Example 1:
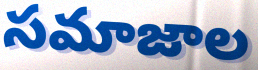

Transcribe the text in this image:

సమాజాల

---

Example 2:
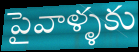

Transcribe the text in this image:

పైవాళ్ళకు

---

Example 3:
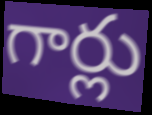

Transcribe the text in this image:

గార్లు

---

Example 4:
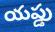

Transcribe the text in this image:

యప్డు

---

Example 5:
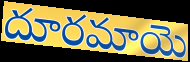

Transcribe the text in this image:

దూరమాయె